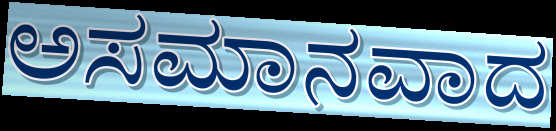
ಅಸಮಾನವಾದ